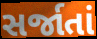
સર્જાતાં